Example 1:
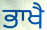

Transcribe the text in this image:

ਭਾਖੈ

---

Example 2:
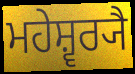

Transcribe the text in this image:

ਮਹੇਸ਼੍ਵਰ੍ਯੈ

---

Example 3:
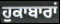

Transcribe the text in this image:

ਹੁਕਾਬਾਰਾਂ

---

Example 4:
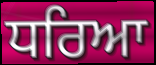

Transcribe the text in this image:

ਧਰਿਆ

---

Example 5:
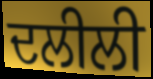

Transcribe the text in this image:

ਦਲੀਲੀ